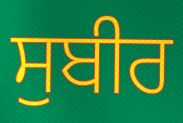
ਸੁਬੀਰ